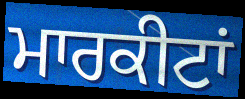
ਮਾਰਕੀਟਾਂ